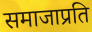
समाजाप्रति